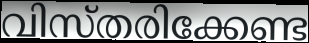
വിസ്തരിക്കേണ്ട